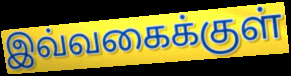
இவ்வகைக்குள்